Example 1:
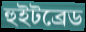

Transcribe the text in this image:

হুইটব্রেড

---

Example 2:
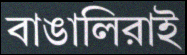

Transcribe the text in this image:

বাঙালিরাই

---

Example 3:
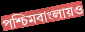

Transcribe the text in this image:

পশ্চিমবাংলায়ও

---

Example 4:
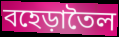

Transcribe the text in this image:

বহেড়াতৈল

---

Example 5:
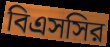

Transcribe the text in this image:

বিএসসির